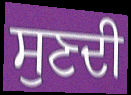
ਸੁਣਦੀ